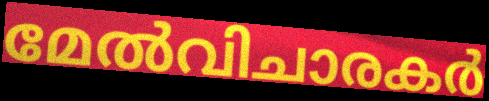
മേൽവിചാരകർ